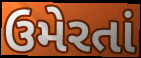
ઉમેરતાં